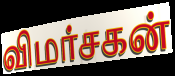
விமர்சகன்